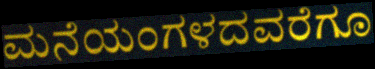
ಮನೆಯಂಗಳದವರೆಗೂ